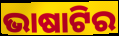
ଭାଷାଟିର